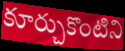
కూర్చుకొంటిని